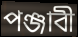
পঞ্জাবী